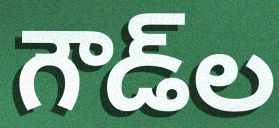
గౌడ్‌ల